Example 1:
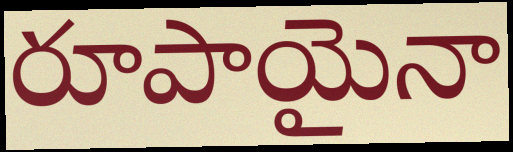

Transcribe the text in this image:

రూపాయైనా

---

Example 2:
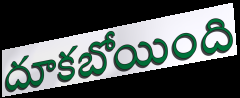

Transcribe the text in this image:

దూకబోయింది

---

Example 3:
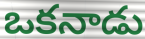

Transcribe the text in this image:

ఒకనాడు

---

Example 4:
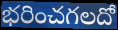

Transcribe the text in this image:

భరించగలదో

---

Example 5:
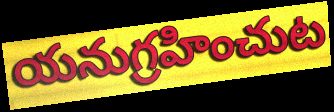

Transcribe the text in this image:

యనుగ్రహించుట